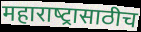
महाराष्ट्रासाठीच